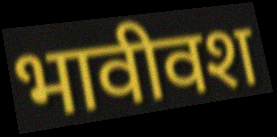
भावीवश